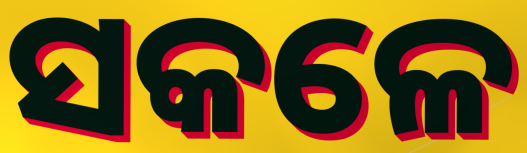
ସକଳେ